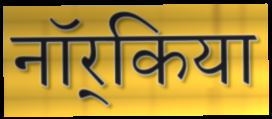
नॉर्किया